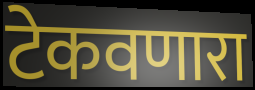
टेकवणारा